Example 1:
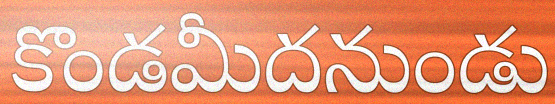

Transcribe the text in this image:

కొండమీదనుండు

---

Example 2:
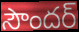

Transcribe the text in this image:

సౌందర్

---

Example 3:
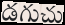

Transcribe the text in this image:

డగుచు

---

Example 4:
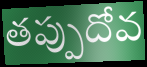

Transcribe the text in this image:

తప్పుదోవ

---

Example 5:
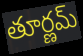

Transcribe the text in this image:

తూర్ణమ్